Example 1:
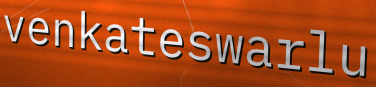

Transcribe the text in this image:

venkateswarlu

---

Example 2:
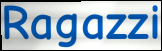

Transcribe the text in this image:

Ragazzi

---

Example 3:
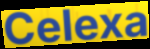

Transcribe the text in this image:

Celexa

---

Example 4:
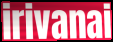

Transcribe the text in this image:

irivanai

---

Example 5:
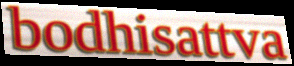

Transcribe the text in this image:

bodhisattva